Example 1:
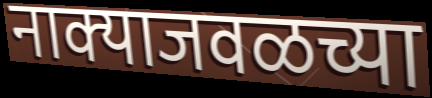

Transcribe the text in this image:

नाक्याजवळच्या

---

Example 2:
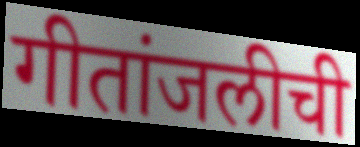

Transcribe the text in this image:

गीतांजलीची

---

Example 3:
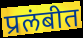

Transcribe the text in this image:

प्रलंबीत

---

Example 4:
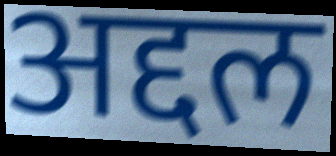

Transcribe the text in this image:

अद्दल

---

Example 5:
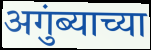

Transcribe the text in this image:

अगुंब्याच्या